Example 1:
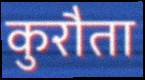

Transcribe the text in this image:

कुरौता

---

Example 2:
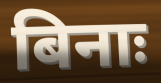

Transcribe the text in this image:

बिनाः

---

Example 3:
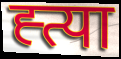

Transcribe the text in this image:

ह्त्या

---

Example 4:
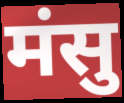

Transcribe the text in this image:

मंसु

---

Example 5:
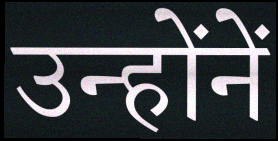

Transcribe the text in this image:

उन्होंनें